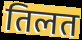
तिलत